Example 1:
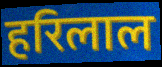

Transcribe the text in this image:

हरिलाल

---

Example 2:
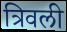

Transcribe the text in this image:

त्रिवली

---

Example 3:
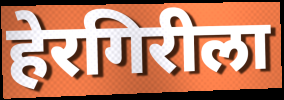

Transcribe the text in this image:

हेरगिरीला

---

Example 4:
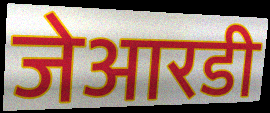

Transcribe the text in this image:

जेआरडी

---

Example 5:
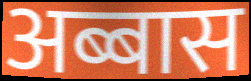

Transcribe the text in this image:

अब्बास